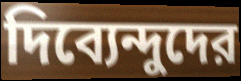
দিব্যেন্দুদের